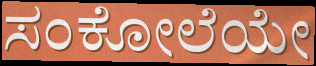
ಸಂಕೋಲೆಯೇ